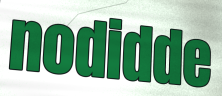
nodidde